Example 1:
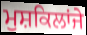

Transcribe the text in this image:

ਮੁਸ਼ਕਿਲਾਂਜੇ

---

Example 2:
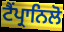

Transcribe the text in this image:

ਟੈਂਪ੍ਰਾਨਿਲੋ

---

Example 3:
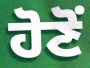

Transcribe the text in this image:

ਹੋਣੋਂ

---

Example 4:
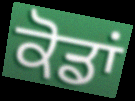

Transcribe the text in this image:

ਕੋਡਾਂ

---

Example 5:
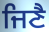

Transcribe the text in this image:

ਜਿਣੈ